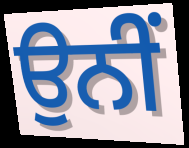
ਉਨੀਂ